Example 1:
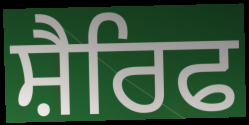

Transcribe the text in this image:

ਸ਼ੈਰਿਫ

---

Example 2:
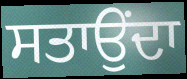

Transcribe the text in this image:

ਸਤਾਉਂਦਾ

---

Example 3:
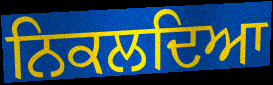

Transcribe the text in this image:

ਨਿਕਲਦਿਆ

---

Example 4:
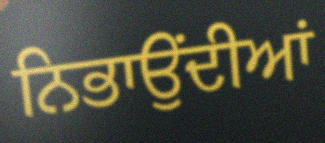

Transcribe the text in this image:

ਨਿਭਾਉਂਦੀਆਂ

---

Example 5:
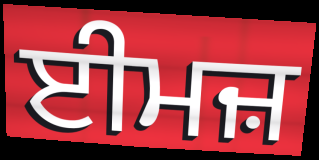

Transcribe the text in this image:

ਈਮਜ਼